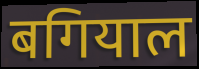
बगियाल